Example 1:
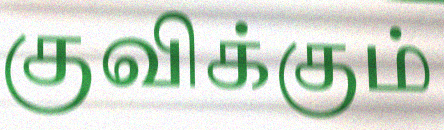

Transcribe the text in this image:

குவிக்கும்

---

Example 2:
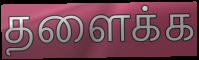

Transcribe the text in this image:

தளைக்க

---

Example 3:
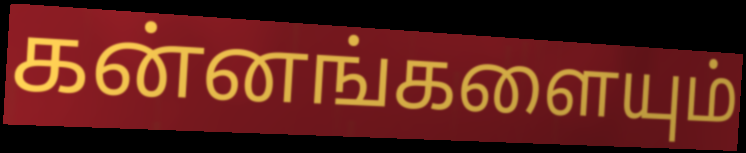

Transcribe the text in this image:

கன்னங்களையும்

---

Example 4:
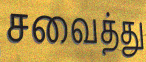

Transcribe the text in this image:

சவைத்து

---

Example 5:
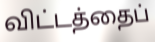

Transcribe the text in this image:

விட்டத்தைப்